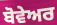
ਬੋਵੇਅਰ